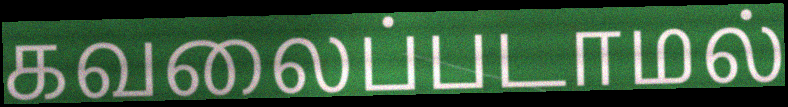
கவலைப்படாமல்